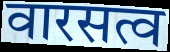
वारसत्व